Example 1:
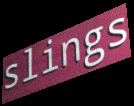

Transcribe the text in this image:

slings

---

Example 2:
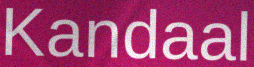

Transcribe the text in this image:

Kandaal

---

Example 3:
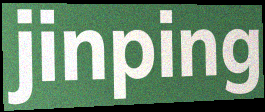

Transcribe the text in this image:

jinping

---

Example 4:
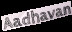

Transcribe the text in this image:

Aadhavan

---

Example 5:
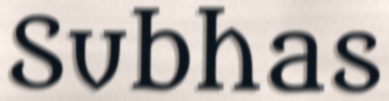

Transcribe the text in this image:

Subhas